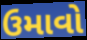
ઉમાવો